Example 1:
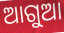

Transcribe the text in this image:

ଆଗୁଆ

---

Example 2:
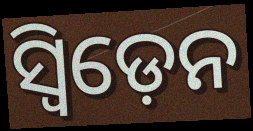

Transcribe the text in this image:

ସ୍ବିଡ଼େନ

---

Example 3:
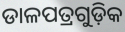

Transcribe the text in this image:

ଡାଳପତ୍ରଗୁଡ଼ିକ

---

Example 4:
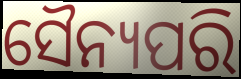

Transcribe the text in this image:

ସୈନ୍ୟପରି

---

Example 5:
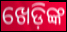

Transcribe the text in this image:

ଖେଡ଼ିଙ୍କ